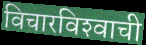
विचारविश्वाची